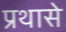
प्रथासे